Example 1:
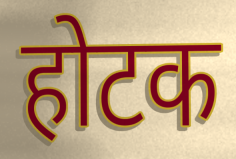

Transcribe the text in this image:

होटक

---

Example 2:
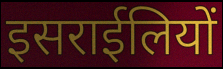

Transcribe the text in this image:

इसराईलियों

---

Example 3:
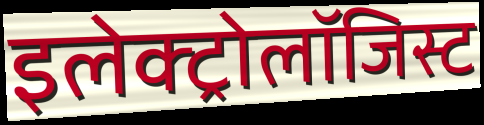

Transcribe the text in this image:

इलेक्ट्रोलॉजिस्ट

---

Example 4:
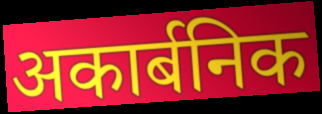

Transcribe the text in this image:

अकार्बनिक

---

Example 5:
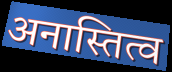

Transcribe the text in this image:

अनास्तित्व